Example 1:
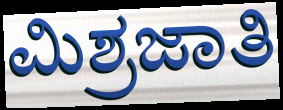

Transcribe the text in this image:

ಮಿಶ್ರಜಾತಿ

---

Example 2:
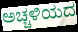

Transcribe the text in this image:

ಅಚ್ಚಳಿಯದ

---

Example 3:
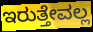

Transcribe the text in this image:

ಇರುತ್ತೇವಲ್ಲ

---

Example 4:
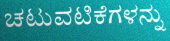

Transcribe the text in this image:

ಚಟುವಟಿಕೆಗಳನ್ನು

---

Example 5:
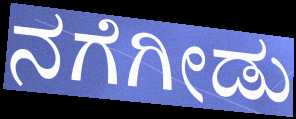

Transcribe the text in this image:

ನಗೆಗೀಡು